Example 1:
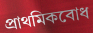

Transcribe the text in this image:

প্রাথমিকবোধ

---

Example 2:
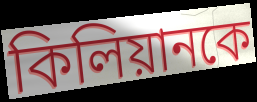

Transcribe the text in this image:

কিলিয়ানকে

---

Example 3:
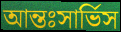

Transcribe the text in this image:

আন্তঃসার্ভিস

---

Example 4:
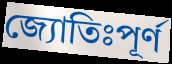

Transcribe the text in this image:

জ্যোতিঃপূর্ণ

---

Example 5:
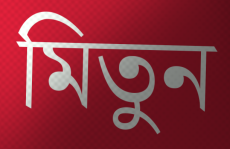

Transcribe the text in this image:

মিতুন